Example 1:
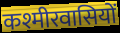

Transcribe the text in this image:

कश्मीरवासियों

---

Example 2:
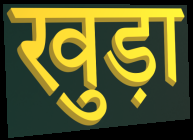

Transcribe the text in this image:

खुड़ा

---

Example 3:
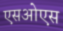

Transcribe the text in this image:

एसओएस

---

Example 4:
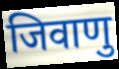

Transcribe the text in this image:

जिवाणु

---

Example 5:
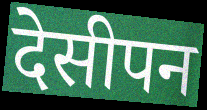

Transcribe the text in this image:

देसीपन